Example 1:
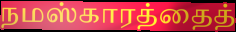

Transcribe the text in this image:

நமஸ்காரத்தைத்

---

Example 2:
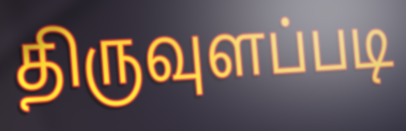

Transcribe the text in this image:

திருவுளப்படி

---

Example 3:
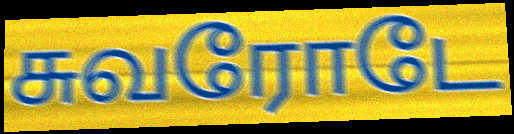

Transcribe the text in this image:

சுவரோடே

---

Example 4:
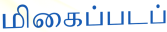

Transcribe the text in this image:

மிகைப்படப்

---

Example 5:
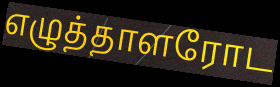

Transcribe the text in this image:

எழுத்தாளரோட